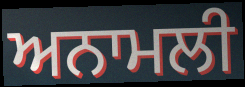
ਅਨਾਮਲੀ